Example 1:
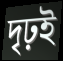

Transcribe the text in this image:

দৃঢ়ই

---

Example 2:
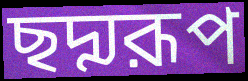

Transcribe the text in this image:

ছদ্মরূপ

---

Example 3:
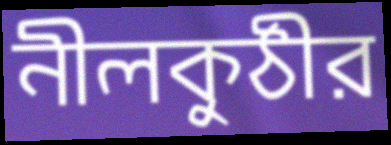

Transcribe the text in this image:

নীলকুঠীর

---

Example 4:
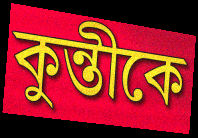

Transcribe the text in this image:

কুন্তীকে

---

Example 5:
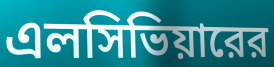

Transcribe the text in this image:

এলসিভিয়ারের